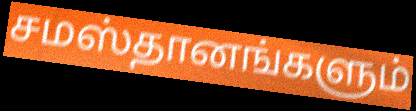
சமஸ்தானங்களும்